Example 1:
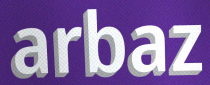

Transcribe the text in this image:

arbaz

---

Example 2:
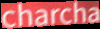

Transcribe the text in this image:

charcha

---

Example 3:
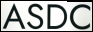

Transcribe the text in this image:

ASDC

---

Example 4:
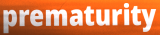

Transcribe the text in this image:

prematurity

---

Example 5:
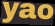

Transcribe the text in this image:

yao